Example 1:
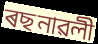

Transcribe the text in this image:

ৰছনাৱলী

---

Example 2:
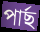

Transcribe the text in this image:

পাৰ্ছ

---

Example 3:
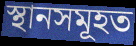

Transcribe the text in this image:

স্থানসমূহত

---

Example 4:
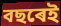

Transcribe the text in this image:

বছৰেই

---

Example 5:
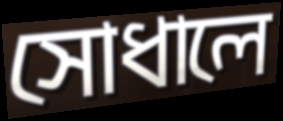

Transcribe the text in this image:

সোধালে